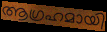
ആഗ്രഹമായി